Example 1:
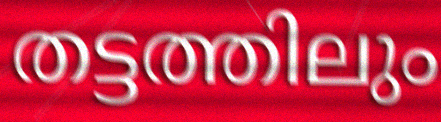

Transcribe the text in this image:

തട്ടത്തിലും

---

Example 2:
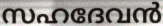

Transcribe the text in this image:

സഹദേവൻ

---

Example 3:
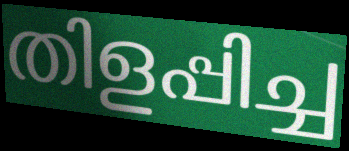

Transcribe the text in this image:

തിളപ്പിച്ച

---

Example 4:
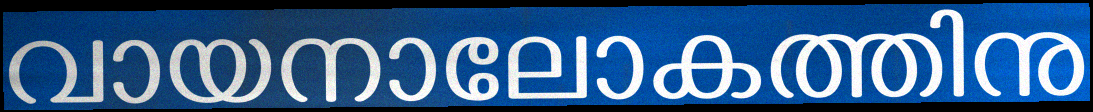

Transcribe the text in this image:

വായനാലോകത്തിനു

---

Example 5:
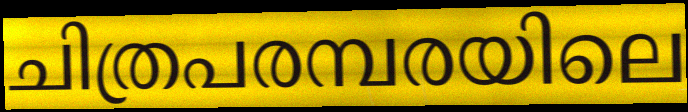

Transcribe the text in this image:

ചിത്രപരമ്പരയിലെ